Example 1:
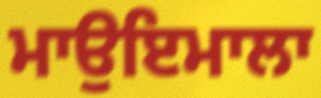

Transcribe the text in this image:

ਮਾਉਇਮਾਲਾ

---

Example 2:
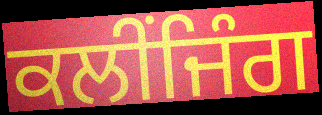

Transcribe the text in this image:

ਕਲੀਂਜਿੰਗ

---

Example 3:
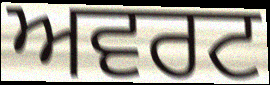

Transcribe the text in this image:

ਅਵਰਟ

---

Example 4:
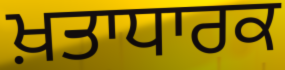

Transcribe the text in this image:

ਖ਼ਤਾਧਾਰਕ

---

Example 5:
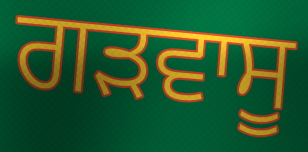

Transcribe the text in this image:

ਗੜਵਾਸੂ